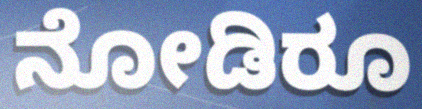
ನೋಡಿರೂ